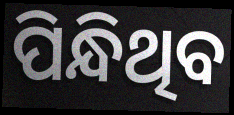
ପିନ୍ଧିଥିବ